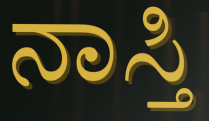
ನಾಸ್ತಿ